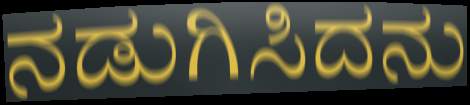
ನಡುಗಿಸಿದನು